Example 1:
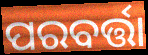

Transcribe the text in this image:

ପରବର୍ତ୍ତା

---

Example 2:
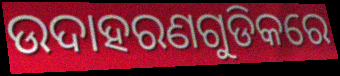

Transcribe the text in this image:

ଉଦାହରଣଗୁଡିକରେ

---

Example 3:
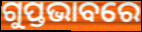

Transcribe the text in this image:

ଗୁପ୍ତଭାବରେ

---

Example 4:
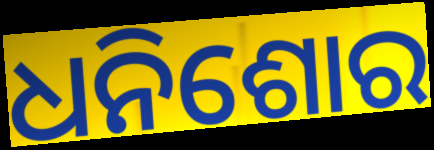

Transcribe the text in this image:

ଧନିଶୋର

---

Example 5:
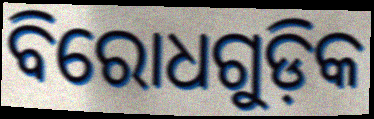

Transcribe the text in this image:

ବିରୋଧଗୁଡ଼ିକ